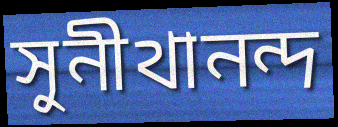
সুনীথানন্দ